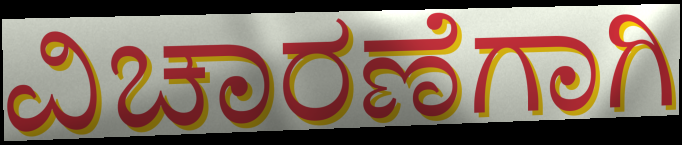
ವಿಚಾರಣೆಗಾಗಿ